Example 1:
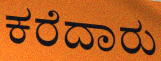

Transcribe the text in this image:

ಕರೆದಾರು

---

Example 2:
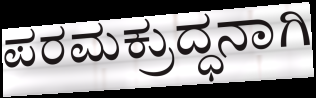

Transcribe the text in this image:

ಪರಮಕ್ರುದ್ಧನಾಗಿ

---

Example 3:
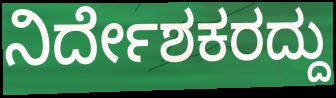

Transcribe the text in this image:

ನಿರ್ದೇಶಕರದ್ದು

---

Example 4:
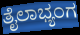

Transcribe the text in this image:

ತೈಲಾಭ್ಯಂಗ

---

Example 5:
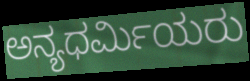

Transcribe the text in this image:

ಅನ್ಯಧರ್ಮಿಯರು